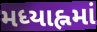
મધ્યાહ્નમાં